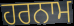
ਹਰਨਾਮ